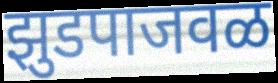
झुडपाजवळ